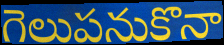
గెలుపనుకొనా